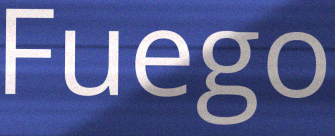
Fuego